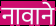
नावाने